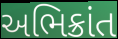
અભિક્રાંત